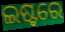
ଇଷ୍ଟରେ